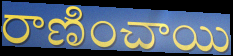
రాణించాయి